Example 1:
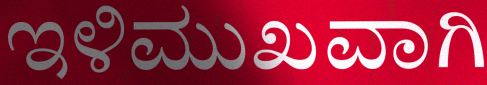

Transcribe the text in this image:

ಇಳಿಮುಖವಾಗಿ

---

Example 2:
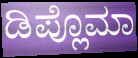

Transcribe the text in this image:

ಡಿಪ್ಲೊಮಾ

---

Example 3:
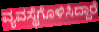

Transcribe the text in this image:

ವ್ಯವಸ್ಥೆಗೊಳಿಸಿದ್ದಾರೆ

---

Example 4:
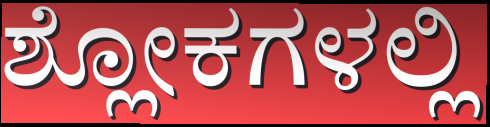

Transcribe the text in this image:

ಶ್ಲೋಕಗಳಲ್ಲಿ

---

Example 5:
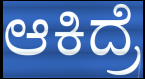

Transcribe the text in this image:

ಆಕಿದ್ರೆ